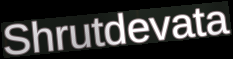
Shrutdevata